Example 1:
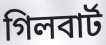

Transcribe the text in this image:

গিলবাৰ্ট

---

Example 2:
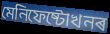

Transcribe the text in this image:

মেনিফেষ্টোখনৰ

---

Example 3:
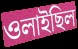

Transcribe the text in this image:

ওলাইছিল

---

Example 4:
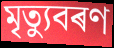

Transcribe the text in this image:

মৃত্যুবৰণ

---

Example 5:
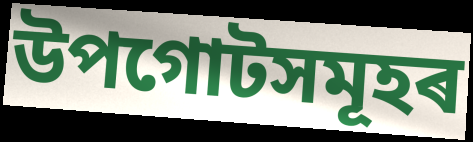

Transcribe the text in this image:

উপগোটসমূহৰ